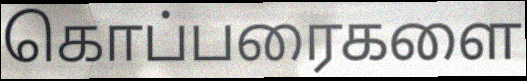
கொப்பரைகளை